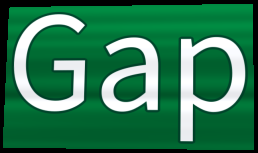
Gap